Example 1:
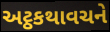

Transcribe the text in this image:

અટ્ઠકથાવચને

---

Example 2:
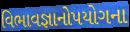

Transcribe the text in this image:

વિભાવજ્ઞાનોપયોગના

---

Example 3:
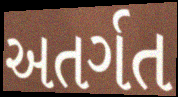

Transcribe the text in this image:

અતર્ગત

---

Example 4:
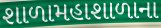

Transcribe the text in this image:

શાળામહાશાળાના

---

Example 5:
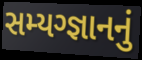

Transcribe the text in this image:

સમ્યગ્જ્ઞાનનું